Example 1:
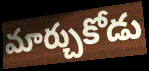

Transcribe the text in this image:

మార్చుకోడు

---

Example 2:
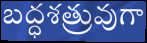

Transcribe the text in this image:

బద్ధశత్రువుగా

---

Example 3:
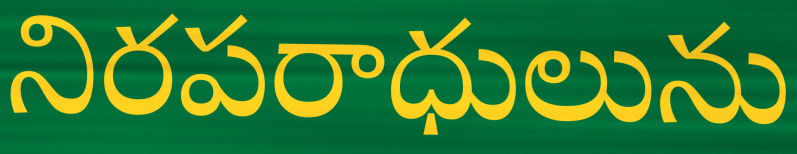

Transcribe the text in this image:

నిరపరాధులును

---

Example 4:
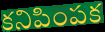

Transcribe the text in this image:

కనిపింపక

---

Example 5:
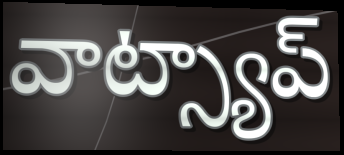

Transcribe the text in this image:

వాట్స్యాప్